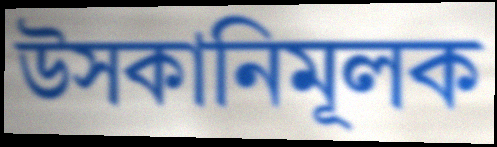
উসকানিমূলক